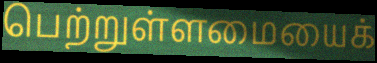
பெற்றுள்ளமையைக்